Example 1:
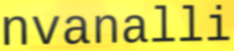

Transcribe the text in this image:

nvanalli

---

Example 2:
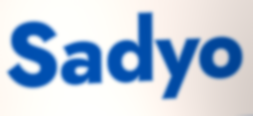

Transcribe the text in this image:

Sadyo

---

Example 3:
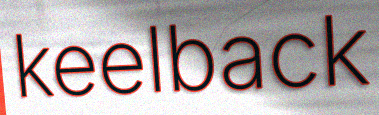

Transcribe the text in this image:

keelback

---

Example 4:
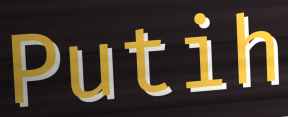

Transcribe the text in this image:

Putih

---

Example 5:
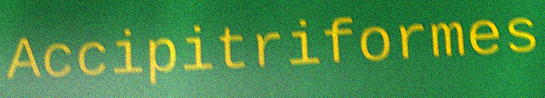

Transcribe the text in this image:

Accipitriformes